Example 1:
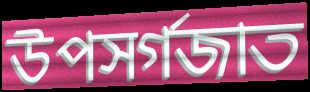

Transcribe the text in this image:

উপসর্গজাত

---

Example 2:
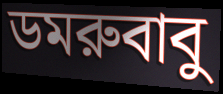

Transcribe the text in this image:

ডমরুবাবু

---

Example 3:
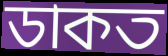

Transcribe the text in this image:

ডাকত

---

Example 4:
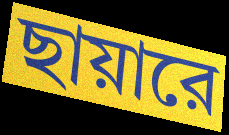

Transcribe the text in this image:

ছায়ারে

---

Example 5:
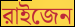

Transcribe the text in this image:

রাইজেন